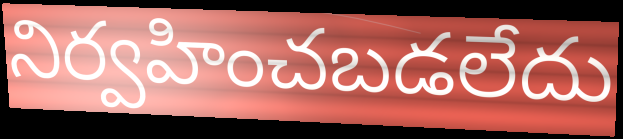
నిర్వహించబడలేదు